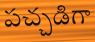
పచ్చడిగా